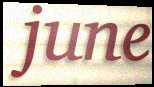
june